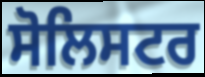
ਸੋਲਿਸਟਰ